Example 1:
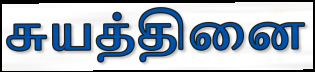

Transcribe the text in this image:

சுயத்தினை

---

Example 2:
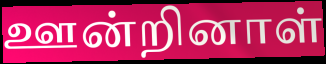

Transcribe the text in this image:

ஊன்றினாள்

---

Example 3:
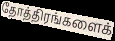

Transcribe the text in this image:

தோத்திரங்களைக்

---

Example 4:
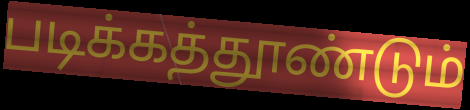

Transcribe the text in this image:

படிக்கத்தூண்டும்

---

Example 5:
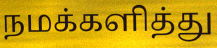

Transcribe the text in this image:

நமக்களித்து